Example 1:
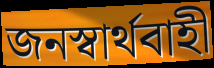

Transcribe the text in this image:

জনস্বার্থবাহী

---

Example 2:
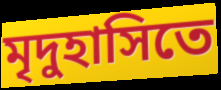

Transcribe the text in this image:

মৃদুহাসিতে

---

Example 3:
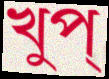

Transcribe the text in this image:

খুপ্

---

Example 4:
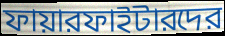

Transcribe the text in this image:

ফায়ারফাইটারদের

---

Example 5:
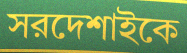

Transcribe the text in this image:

সরদেশাইকে